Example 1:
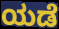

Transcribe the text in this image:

ಯಡೆ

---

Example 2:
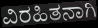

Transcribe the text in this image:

ವಿರಹಿತನಾಗಿ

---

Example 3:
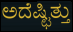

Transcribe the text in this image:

ಅದೆಷ್ಟಿತ್ತು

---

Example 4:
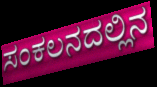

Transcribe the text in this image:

ಸಂಕಲನದಲ್ಲಿನ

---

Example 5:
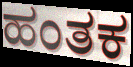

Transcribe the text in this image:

ಹಂತಕ